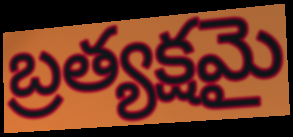
బ్రత్యక్షమై